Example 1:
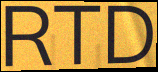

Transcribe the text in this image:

RTD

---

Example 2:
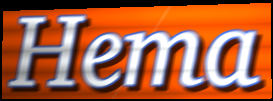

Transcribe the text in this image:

Hema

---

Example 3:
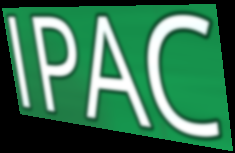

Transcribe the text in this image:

IPAC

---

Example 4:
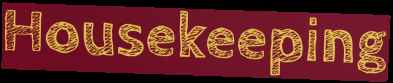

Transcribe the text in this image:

Housekeeping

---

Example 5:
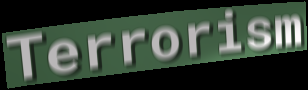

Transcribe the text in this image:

Terrorism